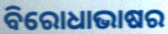
ବିରୋଧାଭାଷର